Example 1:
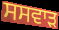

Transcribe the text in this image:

ਸਸਵਾੜ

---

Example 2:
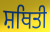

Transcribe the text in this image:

ਸ਼ਥਿਤੀ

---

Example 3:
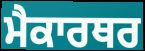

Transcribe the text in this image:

ਮੈਕਾਰਥਰ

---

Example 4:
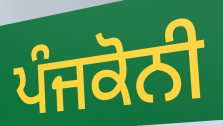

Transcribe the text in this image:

ਪੰਜਕੋਨੀ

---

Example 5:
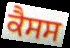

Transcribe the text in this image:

ਕੈਸਸ